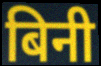
बिनी